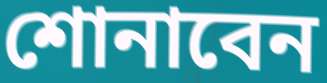
শোনাবেন